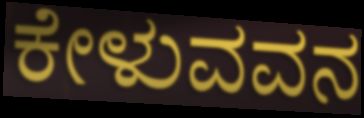
ಕೇಳುವವನ